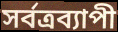
সর্বত্রব্যাপী